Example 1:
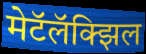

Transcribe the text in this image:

मेटॅलॅक्झिल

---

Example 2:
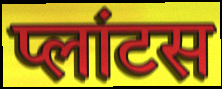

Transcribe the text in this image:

प्लांटस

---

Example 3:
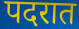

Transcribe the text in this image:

पदरात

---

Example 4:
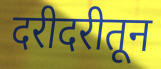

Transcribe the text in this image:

दरीदरीतून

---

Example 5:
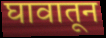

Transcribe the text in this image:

घावातून